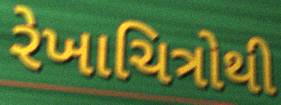
રેખાચિત્રોથી